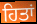
ਹਿਤਾਂ